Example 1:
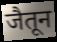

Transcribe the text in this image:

जैतून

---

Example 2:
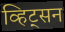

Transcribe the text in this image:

व्हिट्सन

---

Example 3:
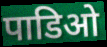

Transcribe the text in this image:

पाडिओ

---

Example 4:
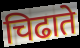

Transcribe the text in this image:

चिढाते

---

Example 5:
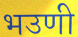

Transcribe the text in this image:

भउणी